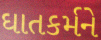
ઘાતકર્મને